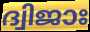
ദ്വിജാഃ